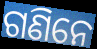
ଗଣିନେ